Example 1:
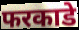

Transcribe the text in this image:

फरकाडे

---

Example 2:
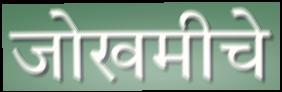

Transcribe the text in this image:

जोखमीचे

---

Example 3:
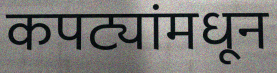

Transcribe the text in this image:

कपट्यांमधून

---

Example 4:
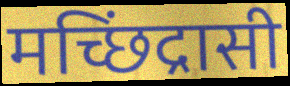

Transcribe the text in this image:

मच्छिंद्रासी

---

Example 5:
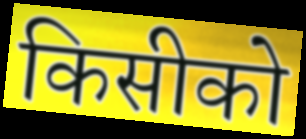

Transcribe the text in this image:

किसीको